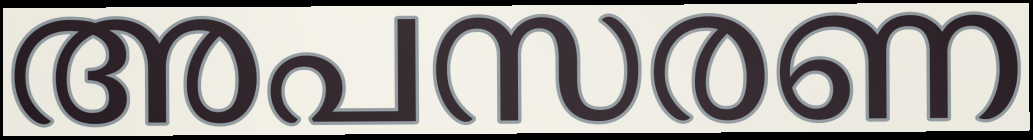
അപസരണ